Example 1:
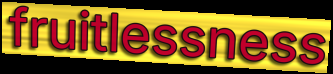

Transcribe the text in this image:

fruitlessness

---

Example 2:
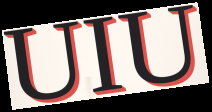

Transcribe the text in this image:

UIU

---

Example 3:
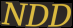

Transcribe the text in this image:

NDD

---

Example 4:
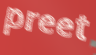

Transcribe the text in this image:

preet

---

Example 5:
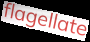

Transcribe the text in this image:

flagellate